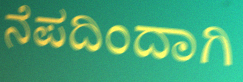
ನೆಪದಿಂದಾಗಿ